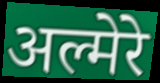
अल्मेरे